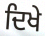
ਦਿਖੇ